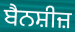
ਬੈਨਸ਼ੀਜ਼